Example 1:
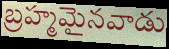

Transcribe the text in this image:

బ్రహ్మమైనవాడు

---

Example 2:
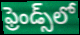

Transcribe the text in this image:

ఫ్రెండ్స్‌లో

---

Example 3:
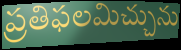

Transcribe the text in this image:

ప్రతిఫలమిచ్చును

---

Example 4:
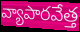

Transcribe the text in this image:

వ్యాపారవేత్త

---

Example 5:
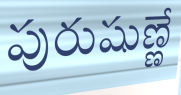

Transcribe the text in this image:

పురుషుణ్ణే